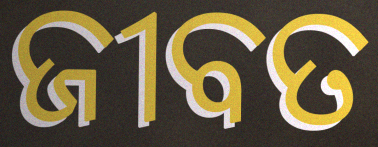
ଜୀବତ